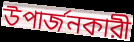
উপার্জনকারী